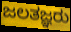
ಜಲತಜ್ಞರು